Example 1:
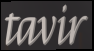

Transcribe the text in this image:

tavir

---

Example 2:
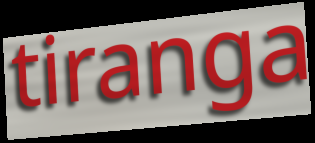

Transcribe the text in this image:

tiranga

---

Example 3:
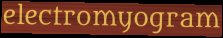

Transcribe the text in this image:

electromyogram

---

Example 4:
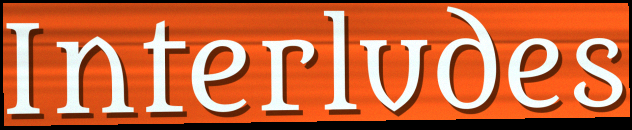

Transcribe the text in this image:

Interludes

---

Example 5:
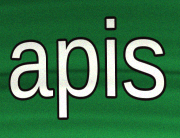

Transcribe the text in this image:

apis